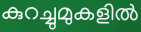
കുറച്ചുമുകളിൽ